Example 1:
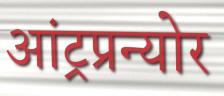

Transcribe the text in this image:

आंट्रप्रन्योर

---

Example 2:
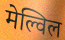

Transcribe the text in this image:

मेल्विल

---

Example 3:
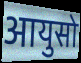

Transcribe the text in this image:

आयुसो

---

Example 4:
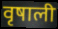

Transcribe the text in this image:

वृषाली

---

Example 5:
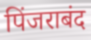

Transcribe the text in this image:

पिंजराबंद